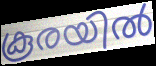
കൂരയിൽ